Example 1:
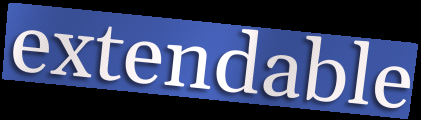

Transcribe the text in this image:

extendable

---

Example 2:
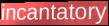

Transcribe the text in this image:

incantatory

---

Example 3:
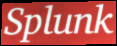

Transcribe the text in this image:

Splunk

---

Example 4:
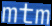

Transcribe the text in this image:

mtm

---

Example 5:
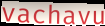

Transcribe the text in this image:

vachavu